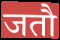
जतौ